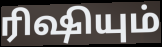
ரிஷியும்